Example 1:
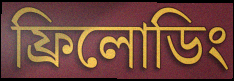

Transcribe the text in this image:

ফ্রিলোডিং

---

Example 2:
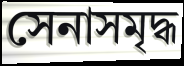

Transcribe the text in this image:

সেনাসমৃদ্ধ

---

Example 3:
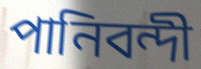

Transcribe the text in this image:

পানিবন্দী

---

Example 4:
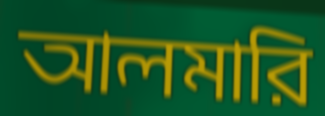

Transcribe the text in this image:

আলমারি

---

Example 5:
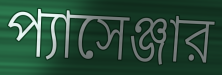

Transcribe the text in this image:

প্যাসেঞ্জার